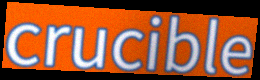
crucible